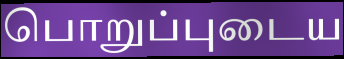
பொறுப்புடைய